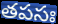
తపసః